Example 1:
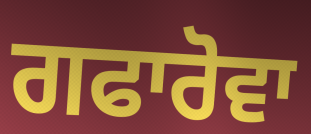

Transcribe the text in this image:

ਗਫਾਰੋਵਾ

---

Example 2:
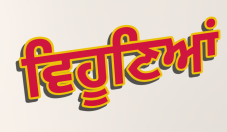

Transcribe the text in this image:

ਵਿਹੂਣਿਆਂ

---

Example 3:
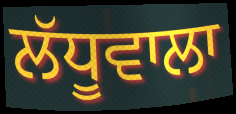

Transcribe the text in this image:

ਲੱਧੂਵਾਲਾ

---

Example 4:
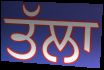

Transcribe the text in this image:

ਤੱਲਾ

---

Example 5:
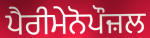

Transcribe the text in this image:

ਪੈਰੀਮੇਨੋਪੌਜ਼ਲ